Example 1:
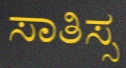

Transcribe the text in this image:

ಸಾತಿಸ್ಸ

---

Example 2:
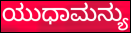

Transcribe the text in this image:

ಯುಧಾಮನ್ಯು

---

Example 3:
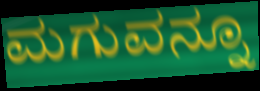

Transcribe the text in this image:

ಮಗುವನ್ನೂ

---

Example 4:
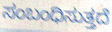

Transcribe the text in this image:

ಸಂಬಂಧಿಸುತ್ತದೆ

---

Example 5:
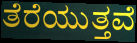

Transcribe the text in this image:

ತೆರೆಯುತ್ತವೆ